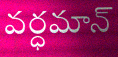
వర్ధమాన్